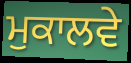
ਮੁਕਾਲਵੇ